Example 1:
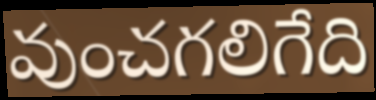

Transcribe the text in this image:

వుంచగలిగేది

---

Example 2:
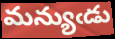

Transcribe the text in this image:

మన్యుఁడు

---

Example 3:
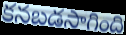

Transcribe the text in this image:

కనబడసాగింది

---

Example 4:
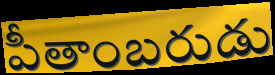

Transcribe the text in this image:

పీతాంబరుడు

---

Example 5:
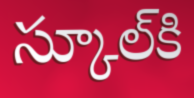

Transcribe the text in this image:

స్కూల్‌కి